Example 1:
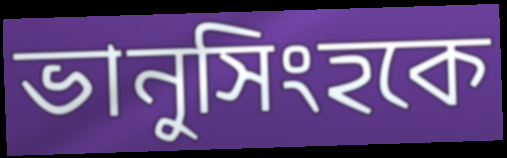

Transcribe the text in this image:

ভানুসিংহকে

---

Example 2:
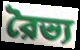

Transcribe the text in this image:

রৈভ্য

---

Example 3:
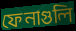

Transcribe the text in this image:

ফেনাগুলি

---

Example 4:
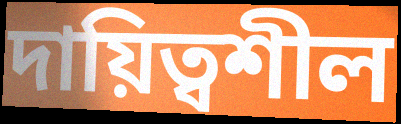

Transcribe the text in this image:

দায়িত্বশীল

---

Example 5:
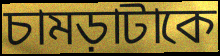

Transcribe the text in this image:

চামড়াটাকে